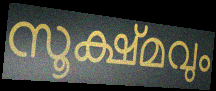
സൂക്ഷ്മവും